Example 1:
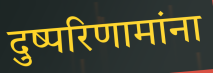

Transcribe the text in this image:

दुष्परिणामांना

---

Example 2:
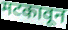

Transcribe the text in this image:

मटकावून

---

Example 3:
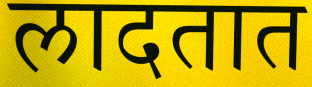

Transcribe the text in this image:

लादतात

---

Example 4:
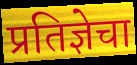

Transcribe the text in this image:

प्रतिज्ञेचा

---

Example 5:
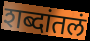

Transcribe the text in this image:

शब्दांतलं